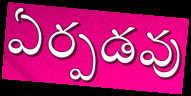
ఏర్పడవు